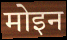
मोइन